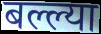
बल्ल्या